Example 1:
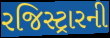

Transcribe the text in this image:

રજિસ્ટ્રારની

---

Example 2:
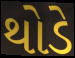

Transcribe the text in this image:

થોડે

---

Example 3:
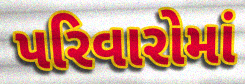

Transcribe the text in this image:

પરિવારોમાં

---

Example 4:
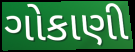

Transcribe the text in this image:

ગોકાણી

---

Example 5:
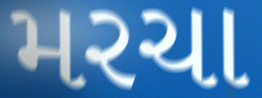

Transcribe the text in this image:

મરચા